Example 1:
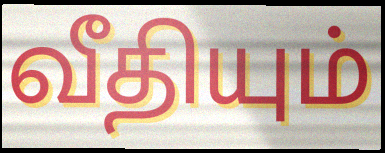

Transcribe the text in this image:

வீதியும்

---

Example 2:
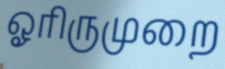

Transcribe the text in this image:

ஓரிருமுறை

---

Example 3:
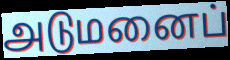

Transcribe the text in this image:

அடுமனைப்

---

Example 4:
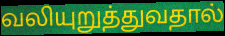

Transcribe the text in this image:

வலியுறுத்துவதால்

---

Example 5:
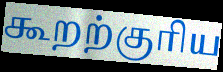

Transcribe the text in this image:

கூறற்குரிய